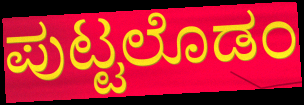
ಪುಟ್ಟಲೊಡಂ